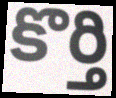
కొర్తి